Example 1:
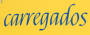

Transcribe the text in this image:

carregados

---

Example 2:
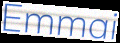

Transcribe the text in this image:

Emmai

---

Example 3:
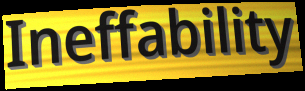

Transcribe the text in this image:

Ineffability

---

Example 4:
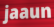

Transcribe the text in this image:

jaaun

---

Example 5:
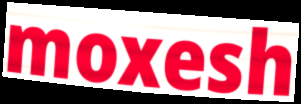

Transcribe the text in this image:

moxesh